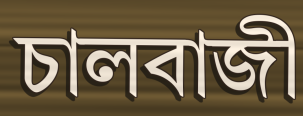
চালবাজী